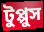
টুপ্পুস